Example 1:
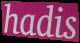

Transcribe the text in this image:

hadis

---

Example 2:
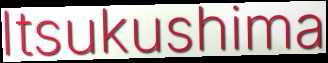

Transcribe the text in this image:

Itsukushima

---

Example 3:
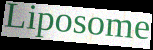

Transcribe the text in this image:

Liposome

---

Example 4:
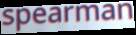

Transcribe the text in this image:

spearman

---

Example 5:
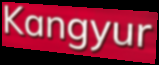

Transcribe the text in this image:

Kangyur